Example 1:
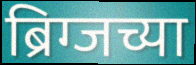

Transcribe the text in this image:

ब्रिग्जच्या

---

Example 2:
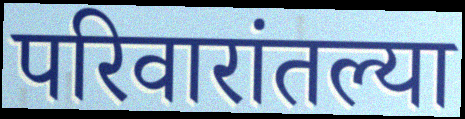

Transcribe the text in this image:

परिवारांतल्या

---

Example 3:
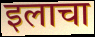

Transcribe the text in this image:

इलाचा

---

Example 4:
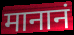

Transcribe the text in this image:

मानानं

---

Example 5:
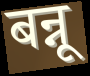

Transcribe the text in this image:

बन्नू